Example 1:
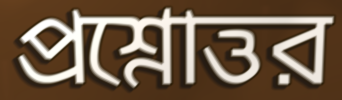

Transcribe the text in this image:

প্রশ্নোত্তর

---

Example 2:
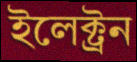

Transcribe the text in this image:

ইলেক্ট্রন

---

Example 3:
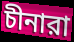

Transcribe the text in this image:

চীনারা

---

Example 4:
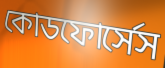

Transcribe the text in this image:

কোডফোর্সেস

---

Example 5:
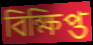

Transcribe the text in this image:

বিক্ষিপ্ত